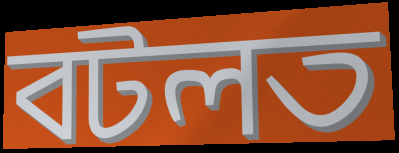
বটলত